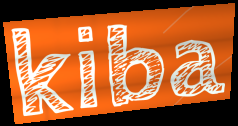
kiba